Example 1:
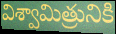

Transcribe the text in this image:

విశ్వామిత్రునికి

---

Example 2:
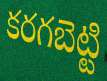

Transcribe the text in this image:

కరగబెట్టి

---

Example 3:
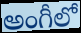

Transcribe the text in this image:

అంగీలో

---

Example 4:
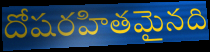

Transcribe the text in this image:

దోషరహితమైనది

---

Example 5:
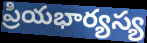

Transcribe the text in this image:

ప్రియభార్యస్య